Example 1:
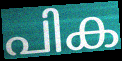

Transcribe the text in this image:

പിക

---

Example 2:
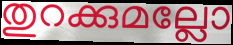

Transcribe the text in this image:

തുറക്കുമല്ലോ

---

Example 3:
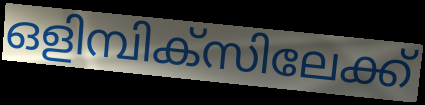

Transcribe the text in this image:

ഒളിമ്പിക്സിലേക്ക്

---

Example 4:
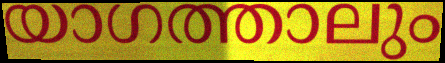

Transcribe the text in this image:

യാഗത്താലും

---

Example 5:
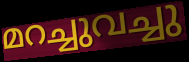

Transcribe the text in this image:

മറച്ചുവച്ചു